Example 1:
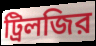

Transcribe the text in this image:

ট্রিলজির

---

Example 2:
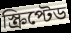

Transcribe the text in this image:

স্ক্রিপ্টেড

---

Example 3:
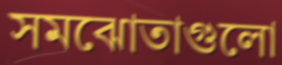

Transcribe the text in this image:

সমঝোতাগুলো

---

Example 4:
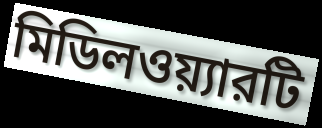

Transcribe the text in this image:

মিডিলওয়্যারটি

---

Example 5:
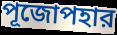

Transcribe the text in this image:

পূজোপহার